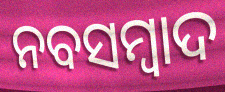
ନବସମ୍ବାଦ